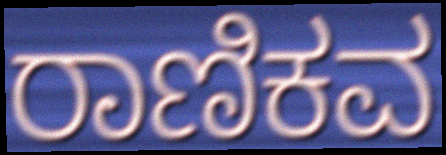
ರಾಣಿಕವ